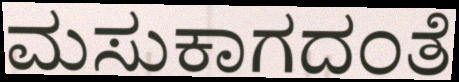
ಮಸುಕಾಗದಂತೆ